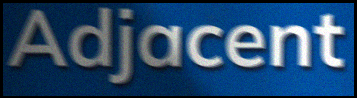
Adjacent